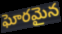
ఘోరమైన